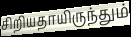
சிறியதாயிருந்தும்